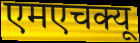
एमएचक्यू